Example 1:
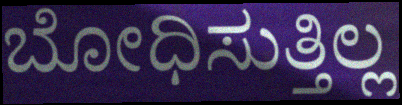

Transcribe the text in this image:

ಬೋಧಿಸುತ್ತಿಲ್ಲ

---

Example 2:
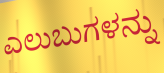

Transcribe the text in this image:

ಎಲುಬುಗಳನ್ನು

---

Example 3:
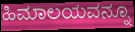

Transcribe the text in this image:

ಹಿಮಾಲಯವನ್ನೂ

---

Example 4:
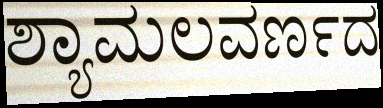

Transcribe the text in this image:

ಶ್ಯಾಮಲವರ್ಣದ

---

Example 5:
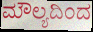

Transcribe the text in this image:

ಮೌಲ್ಯದಿಂದ